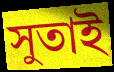
সুতাই